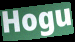
Hogu